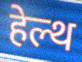
हेल्थ